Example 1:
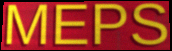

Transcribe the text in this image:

MEPS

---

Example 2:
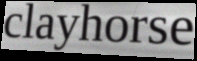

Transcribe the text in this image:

clayhorse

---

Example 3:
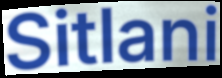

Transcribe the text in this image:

Sitlani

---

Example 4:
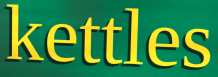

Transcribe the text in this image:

kettles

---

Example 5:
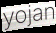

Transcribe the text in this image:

yojan